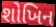
શોખિન